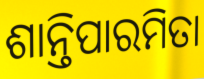
ଶାନ୍ତିପାରମିତା